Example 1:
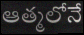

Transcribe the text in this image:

ఆత్మలోనే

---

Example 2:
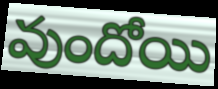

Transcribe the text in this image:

వుందోయి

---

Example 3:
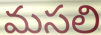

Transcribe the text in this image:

మసలి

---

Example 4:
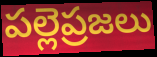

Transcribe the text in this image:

పల్లెప్రజలు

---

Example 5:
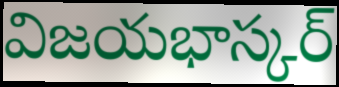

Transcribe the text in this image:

విజయభాస్కర్